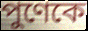
পুণেকে